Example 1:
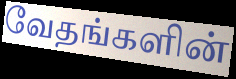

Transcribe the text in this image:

வேதங்களின்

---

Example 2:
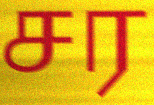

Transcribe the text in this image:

சர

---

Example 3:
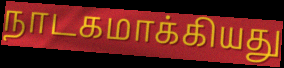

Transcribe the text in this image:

நாடகமாக்கியது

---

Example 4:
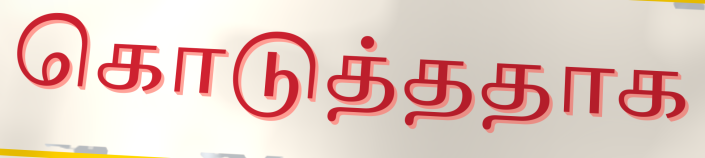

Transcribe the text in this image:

கொடுத்ததாக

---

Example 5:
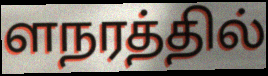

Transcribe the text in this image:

ளநரத்தில்